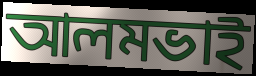
আলমভাই